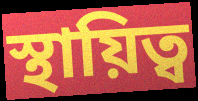
স্থায়িত্ব